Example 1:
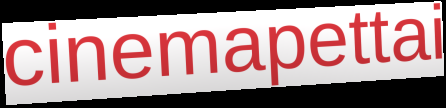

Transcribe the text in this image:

cinemapettai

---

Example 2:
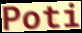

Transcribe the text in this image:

Poti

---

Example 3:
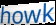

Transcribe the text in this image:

howk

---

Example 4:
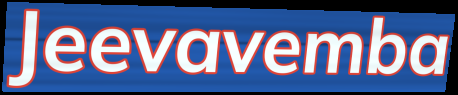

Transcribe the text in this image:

Jeevavemba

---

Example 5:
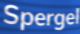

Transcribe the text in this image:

Spergel